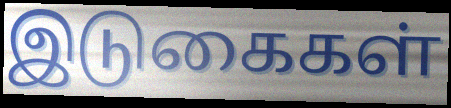
இடுகைகள்